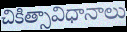
చికిత్సావిధానాలు